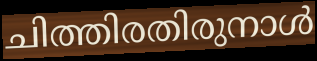
ചിത്തിരതിരുനാൾ